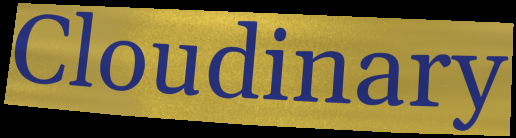
Cloudinary